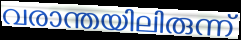
വരാന്തയിലിരുന്ന്